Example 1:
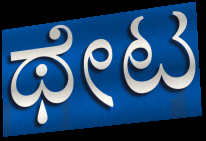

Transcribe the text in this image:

ಥೇಟ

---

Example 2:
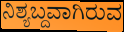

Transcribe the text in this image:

ನಿಶ್ಯಬ್ದವಾಗಿರುವ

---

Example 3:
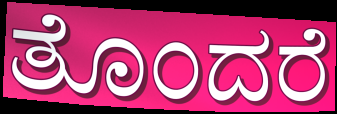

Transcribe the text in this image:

ತೊಂದರೆ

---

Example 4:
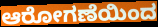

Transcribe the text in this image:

ಆರೋಗಣೆಯಿಂದ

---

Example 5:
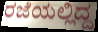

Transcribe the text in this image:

ರಜೆಯಲ್ಲಿದ್ದ